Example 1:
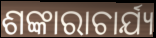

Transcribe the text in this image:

ଶଙ୍କାରାଚାର୍ଯ୍ୟ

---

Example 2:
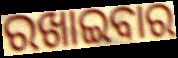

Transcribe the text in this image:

ରଖାଇବାର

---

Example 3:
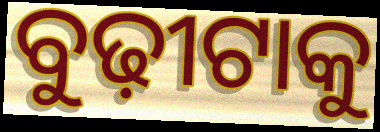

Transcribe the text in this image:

ବୁଢ଼ୀଟାକୁ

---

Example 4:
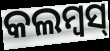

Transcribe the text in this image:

କଲମ୍ବସ୍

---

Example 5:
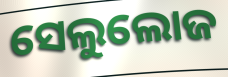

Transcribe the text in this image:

ସେଲୁଲୋଜ